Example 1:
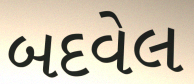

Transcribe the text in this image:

બદવેલ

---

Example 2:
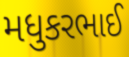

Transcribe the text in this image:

મધુકરભાઈ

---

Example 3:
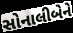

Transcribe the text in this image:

સોનાલીબેને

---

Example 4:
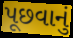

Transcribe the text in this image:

પૂછવાનું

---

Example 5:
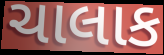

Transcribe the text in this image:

ચાલાક